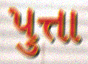
પુત્તા